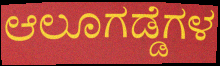
ಆಲೂಗಡ್ಡೆಗಳ